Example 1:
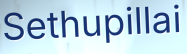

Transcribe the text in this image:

Sethupillai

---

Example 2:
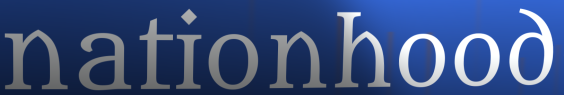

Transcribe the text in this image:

nationhood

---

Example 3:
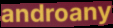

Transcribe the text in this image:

androany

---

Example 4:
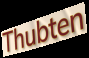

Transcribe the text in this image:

Thubten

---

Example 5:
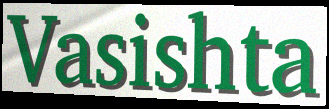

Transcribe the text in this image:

Vasishta